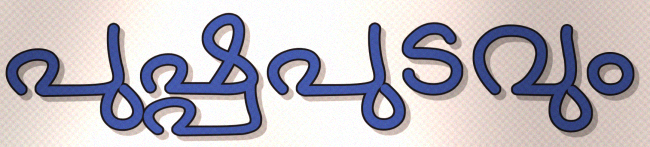
പുഷ്പപുടവും